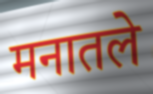
मनातले